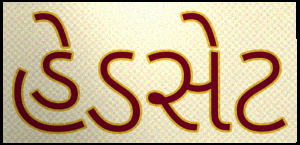
હેડસેટ